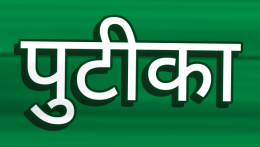
पुटीका